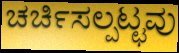
ಚರ್ಚಿಸಲ್ಪಟ್ಟವು